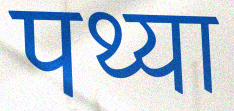
पथ्या